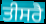
ਤੀਸਰੈ